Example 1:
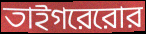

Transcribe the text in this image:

তাইগরেরোর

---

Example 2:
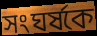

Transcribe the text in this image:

সংঘর্ষকে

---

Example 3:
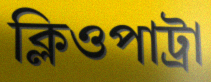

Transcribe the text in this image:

ক্লিওপাট্রা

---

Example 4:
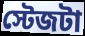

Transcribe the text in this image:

স্টেজটা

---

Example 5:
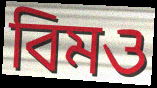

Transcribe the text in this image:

বিমও